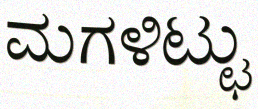
ಮಗಳಿಟ್ಟು